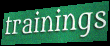
trainings